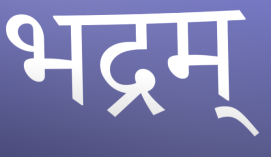
भद्रम्